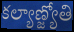
కల్యాణ్జ్యోతి